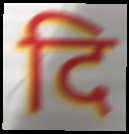
दि